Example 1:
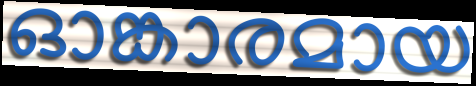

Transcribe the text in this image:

ഓങ്കാരമായ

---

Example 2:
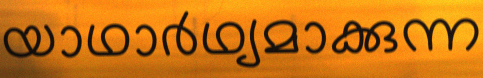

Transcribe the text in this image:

യാഥാർഥ്യമാക്കുന്ന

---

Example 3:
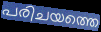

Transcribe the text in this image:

പരിചയത്തെ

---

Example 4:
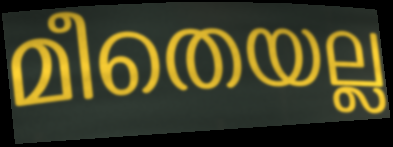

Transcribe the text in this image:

മീതെയല്ല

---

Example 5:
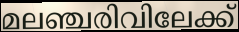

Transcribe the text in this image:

മലഞ്ചരിവിലേക്ക്